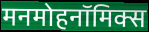
मनमोहनॉमिक्स